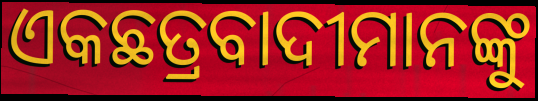
ଏକଛତ୍ରବାଦୀମାନଙ୍କୁ